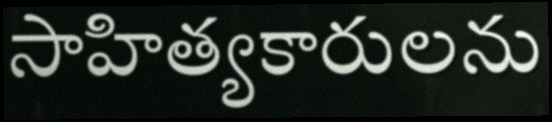
సాహిత్యకారులను